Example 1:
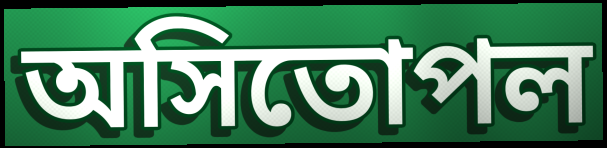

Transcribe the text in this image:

অসিতোপল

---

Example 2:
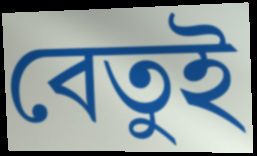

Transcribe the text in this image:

বেতুই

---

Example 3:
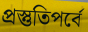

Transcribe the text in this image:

প্রস্তুতিপর্বে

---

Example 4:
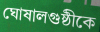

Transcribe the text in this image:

ঘোষালগুষ্ঠীকে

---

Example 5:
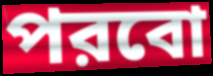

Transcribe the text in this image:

পরবো